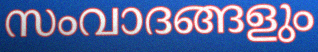
സംവാദങ്ങളും